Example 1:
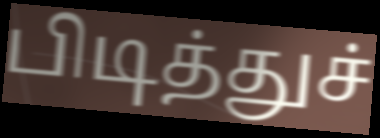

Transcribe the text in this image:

பிடித்துச்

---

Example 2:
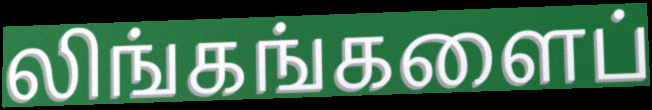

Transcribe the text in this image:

லிங்கங்களைப்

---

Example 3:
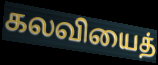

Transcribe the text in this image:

கலவியைத்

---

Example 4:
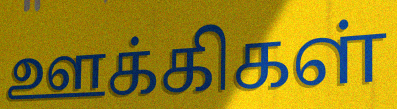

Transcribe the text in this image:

ஊக்கிகள்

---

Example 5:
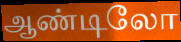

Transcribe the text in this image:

ஆண்டிலோ